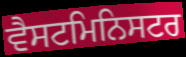
ਵੈਸਟਮਿਨਿਸਟਰ